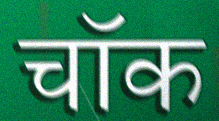
चॉक